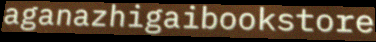
aganazhigaibookstore